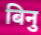
बिनु